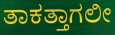
ತಾಕತ್ತಾಗಲೀ